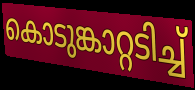
കൊടുങ്കാറ്റടിച്ച്